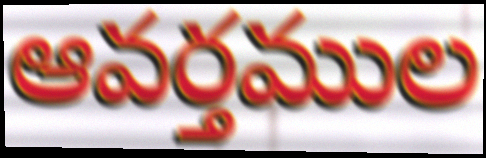
ఆవర్తముల